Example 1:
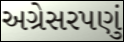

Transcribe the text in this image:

અગ્રેસરપણું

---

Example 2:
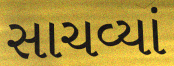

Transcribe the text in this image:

સાચવ્યાં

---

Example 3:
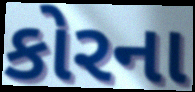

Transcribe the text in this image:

કોરના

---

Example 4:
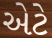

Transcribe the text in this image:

એટે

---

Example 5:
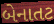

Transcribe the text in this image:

બેનાતટ